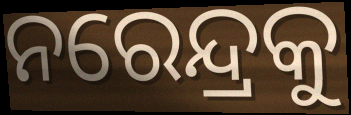
ନରେନ୍ଦ୍ରକୁ